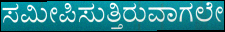
ಸಮೀಪಿಸುತ್ತಿರುವಾಗಲೇ